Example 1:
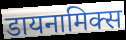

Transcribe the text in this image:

डायनामिक्स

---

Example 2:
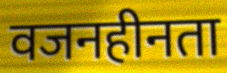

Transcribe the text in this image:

वजनहीनता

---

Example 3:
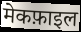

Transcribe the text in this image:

मेकफ़ाइल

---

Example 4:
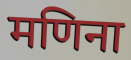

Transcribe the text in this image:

मणिना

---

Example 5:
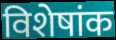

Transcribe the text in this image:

विशेषांक